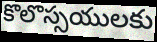
కొలొస్సయులకు